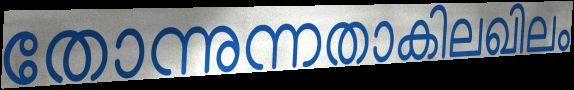
തോന്നുന്നതാകിലഖിലം